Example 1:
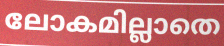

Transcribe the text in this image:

ലോകമില്ലാതെ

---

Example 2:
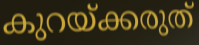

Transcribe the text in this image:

കുറയ്ക്കരുത്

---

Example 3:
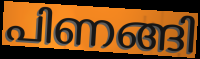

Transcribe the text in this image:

പിണങ്ങി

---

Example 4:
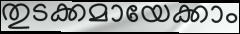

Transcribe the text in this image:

തുടക്കമായേക്കാം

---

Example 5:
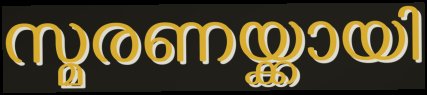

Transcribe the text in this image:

സ്മരണയ്ക്കായി